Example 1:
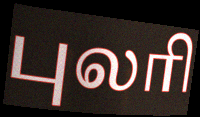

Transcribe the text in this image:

புலரி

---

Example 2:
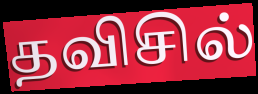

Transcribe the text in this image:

தவிசில்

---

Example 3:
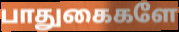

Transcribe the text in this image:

பாதுகைகளே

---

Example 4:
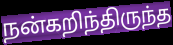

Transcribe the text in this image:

நன்கறிந்திருந்த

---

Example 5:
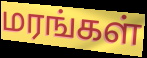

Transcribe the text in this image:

மரங்கள்